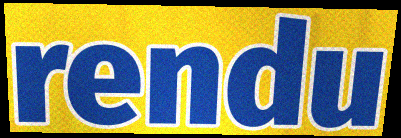
rendu